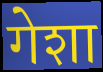
गेशा